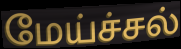
மேய்ச்சல்